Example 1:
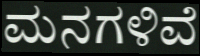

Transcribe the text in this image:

ಮನಗಳಿವೆ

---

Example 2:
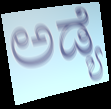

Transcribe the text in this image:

ಅಡ್ಯೆ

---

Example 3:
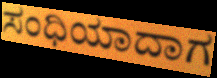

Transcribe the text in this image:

ಸಂಧಿಯಾದಾಗ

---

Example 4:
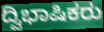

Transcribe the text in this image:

ದ್ವಿಭಾಷಿಕರು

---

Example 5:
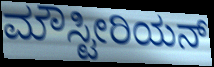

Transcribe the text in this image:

ಮೌಸ್ಟೀರಿಯನ್